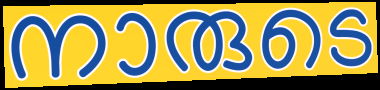
നാരുടെ